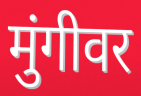
मुंगीवर